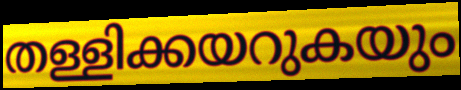
തള്ളിക്കയറുകയും